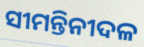
ସୀମନ୍ତିନୀଦଳ